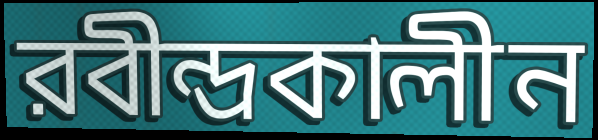
রবীন্দ্রকালীন